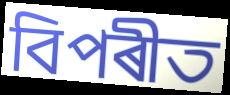
বিপৰীত